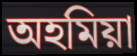
অহমিয়া